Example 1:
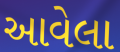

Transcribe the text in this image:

આવેલા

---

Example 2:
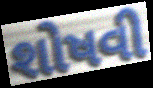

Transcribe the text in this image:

શોષવી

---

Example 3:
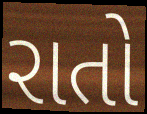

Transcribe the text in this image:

રાતો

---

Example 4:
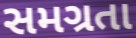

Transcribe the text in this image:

સમગ્રતા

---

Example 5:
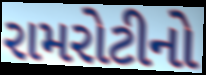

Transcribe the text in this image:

રામરોટીનો